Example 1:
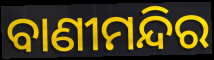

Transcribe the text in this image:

ବାଣୀମନ୍ଦିର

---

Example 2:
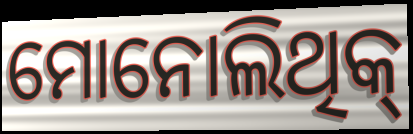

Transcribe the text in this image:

ମୋନୋଲିଥିକ୍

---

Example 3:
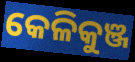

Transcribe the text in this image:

କେଳିକୁଞ୍ଜ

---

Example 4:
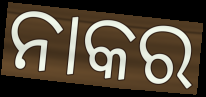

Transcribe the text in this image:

ନାକର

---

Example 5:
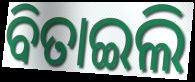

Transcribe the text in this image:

ବିତାଇଲି